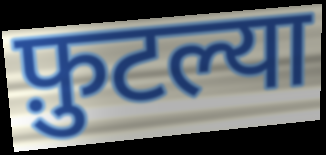
फ़ुटल्या